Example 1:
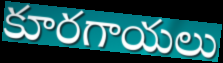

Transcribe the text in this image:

కూరగాయలు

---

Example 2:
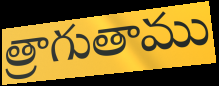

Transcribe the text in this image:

త్రాగుతాము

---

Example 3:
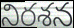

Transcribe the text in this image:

నిరశన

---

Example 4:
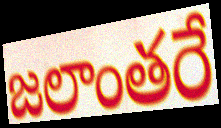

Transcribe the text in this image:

జలాంతరే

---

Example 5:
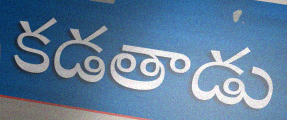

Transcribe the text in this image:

కడతాడు